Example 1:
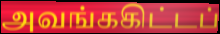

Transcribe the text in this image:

அவங்ககிட்டப்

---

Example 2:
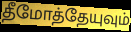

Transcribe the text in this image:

தீமோத்தேயுவும்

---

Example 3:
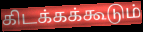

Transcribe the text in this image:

கிடக்கக்கூடும்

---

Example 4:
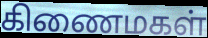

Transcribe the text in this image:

கிணைமகள்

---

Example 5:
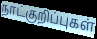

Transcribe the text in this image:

நாட்குறிப்புகள்